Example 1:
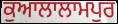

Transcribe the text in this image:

ਕੁਆਲਾਲਾਮਪੁਰ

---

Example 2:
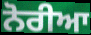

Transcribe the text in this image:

ਨੋਰੀਆ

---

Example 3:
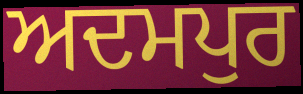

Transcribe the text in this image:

ਅਦਮਪੁਰ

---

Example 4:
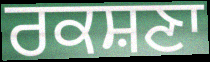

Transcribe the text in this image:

ਰਕਸ਼ਣਾ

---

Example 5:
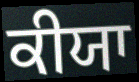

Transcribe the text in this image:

ਕੀਯਾ